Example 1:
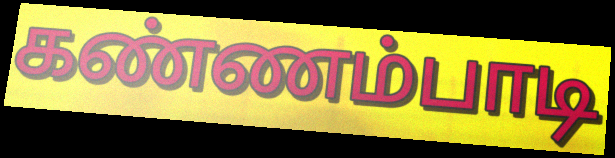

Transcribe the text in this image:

கண்ணம்பாடி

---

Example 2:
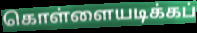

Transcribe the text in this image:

கொள்ளையடிக்கப்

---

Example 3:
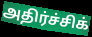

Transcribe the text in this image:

அதிர்ச்சிக்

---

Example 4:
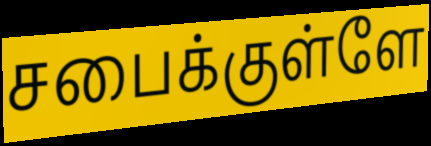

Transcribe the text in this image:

சபைக்குள்ளே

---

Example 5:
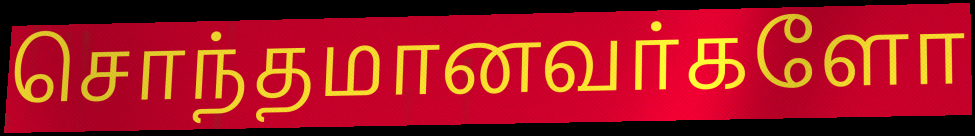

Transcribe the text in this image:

சொந்தமானவர்களோ